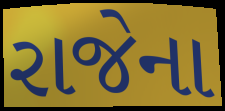
રાજેના